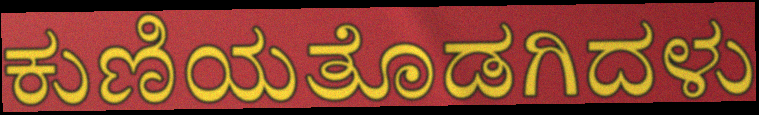
ಕುಣಿಯತೊಡಗಿದಳು